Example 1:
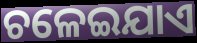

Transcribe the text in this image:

ଚଳେଇଯାଏ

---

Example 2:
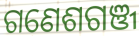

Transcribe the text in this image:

ଗଣେଶଗଞ୍ଜ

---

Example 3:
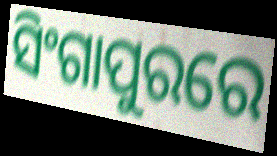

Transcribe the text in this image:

ସିଂଗାପୁରରେ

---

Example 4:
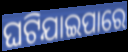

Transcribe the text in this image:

ଘଟିଯାଇପାରେ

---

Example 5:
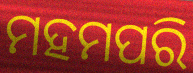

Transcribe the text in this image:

ମହମପରି